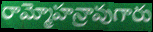
రామ్మోహన్రావుగారు